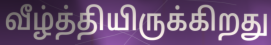
வீழ்த்தியிருக்கிறது